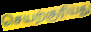
செயற்குரியது